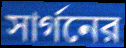
সার্গনের